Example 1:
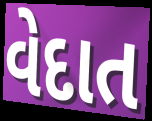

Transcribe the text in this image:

વેદાત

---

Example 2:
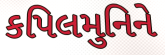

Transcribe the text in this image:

કપિલમુનિને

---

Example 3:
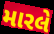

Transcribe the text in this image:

મારલે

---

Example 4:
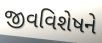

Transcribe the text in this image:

જીવવિશેષને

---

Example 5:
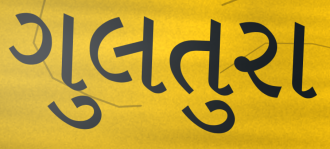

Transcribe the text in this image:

ગુલતુરા